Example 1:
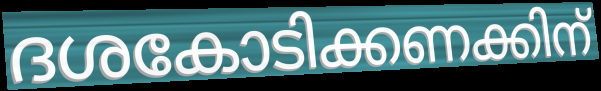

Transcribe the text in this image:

ദശകോടിക്കണക്കിന്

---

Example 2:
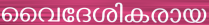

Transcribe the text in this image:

വൈദേശികരായ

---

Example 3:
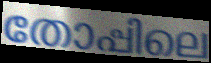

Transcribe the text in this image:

തോപ്പിലെ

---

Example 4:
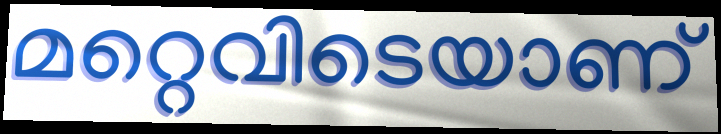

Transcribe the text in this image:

മറ്റെവിടെയാണ്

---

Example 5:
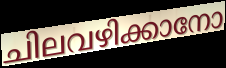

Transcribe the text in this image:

ചിലവഴിക്കാനോ